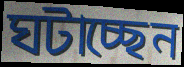
ঘটাচ্ছেন